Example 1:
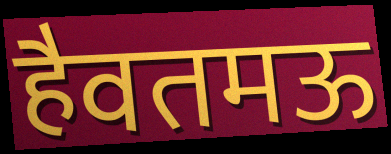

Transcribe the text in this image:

हैवतमऊ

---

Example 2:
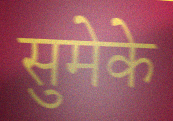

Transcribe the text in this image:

सुमेके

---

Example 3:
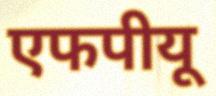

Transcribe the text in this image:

एफपीयू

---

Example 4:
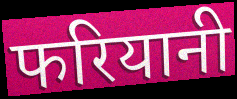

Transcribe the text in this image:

फरियानी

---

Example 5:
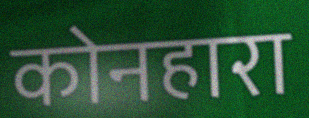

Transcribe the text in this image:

कोनहारा